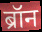
ब्रॉन